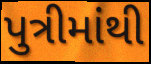
પુત્રીમાંથી